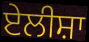
ਏਲੀਸ਼ਾ